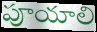
పూయాలి